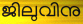
ജിലുവിനു